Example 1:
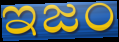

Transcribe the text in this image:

ఇజం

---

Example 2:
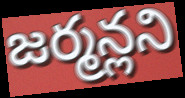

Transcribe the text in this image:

జర్మన్లని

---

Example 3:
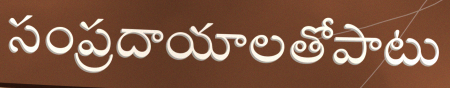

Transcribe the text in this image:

సంప్రదాయాలతోపాటు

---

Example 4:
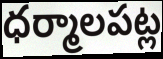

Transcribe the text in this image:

ధర్మాలపట్ల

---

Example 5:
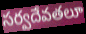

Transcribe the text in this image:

సర్వదేవతలూ